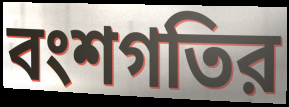
বংশগতির